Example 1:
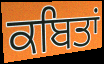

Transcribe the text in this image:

ਕਬਿਤਾਂ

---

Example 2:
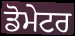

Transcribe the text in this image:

ਡੋਮੇਟਰ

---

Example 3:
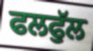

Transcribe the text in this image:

ਫਲਫੁੱਲ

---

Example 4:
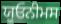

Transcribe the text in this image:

ਯੂਓਨੀਮਸ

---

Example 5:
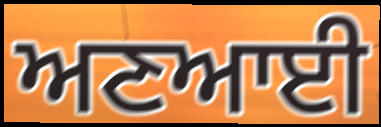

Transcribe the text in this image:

ਅਣਆਈ